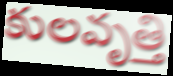
కులవృత్తి